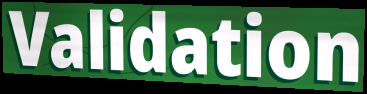
Validation